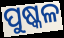
ପୁଷ୍କଳ